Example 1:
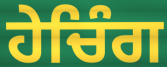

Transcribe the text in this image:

ਹੇਚਿੰਗ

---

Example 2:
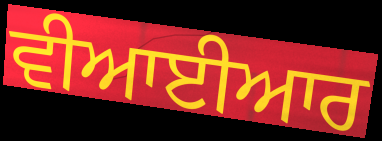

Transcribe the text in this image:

ਵੀਆਈਆਰ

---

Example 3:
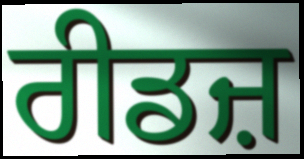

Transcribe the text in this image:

ਰੀਡਜ਼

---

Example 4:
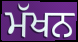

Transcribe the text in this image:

ਮੱਖਨ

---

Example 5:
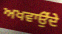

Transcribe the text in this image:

ਅਖਵਾਉੇਂਦੇ